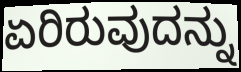
ಏರಿರುವುದನ್ನು